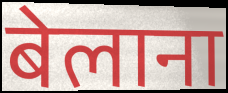
बेलाना